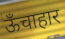
ऊँचाहार